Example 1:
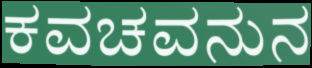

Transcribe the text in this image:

ಕವಚವನುನ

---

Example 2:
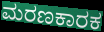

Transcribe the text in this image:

ಮರಣಕಾರಕ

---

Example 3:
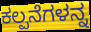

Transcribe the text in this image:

ಕಲ್ಪನೆಗಳನ್ನ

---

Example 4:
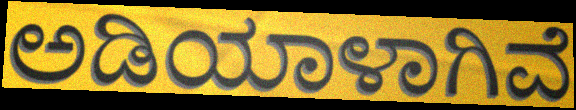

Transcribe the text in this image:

ಅಡಿಯಾಳಾಗಿವೆ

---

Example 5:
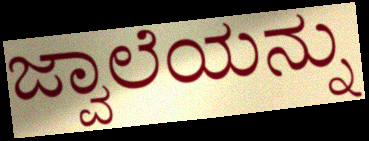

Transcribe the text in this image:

ಜ್ವಾಲೆಯನ್ನು